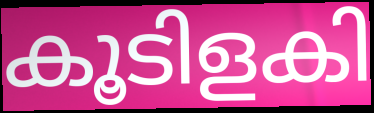
കൂടിളകി